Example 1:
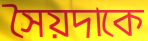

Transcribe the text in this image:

সৈয়দাকে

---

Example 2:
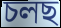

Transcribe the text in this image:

চলছ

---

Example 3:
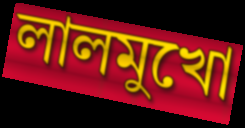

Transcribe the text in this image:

লালমুখো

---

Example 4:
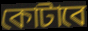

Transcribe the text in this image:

কোটাবে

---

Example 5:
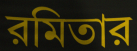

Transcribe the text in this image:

রমিতার